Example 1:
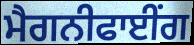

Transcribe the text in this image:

ਮੈਗਨੀਫਾਈਂਗ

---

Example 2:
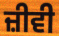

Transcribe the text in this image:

ਜ਼ੀਵੀ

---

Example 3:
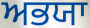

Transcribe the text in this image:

ਅਭਯਾ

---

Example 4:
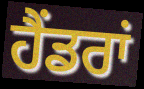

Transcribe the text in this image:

ਹੈਂਡਰਾਂ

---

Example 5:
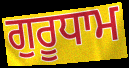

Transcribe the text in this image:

ਗੁਰੂਧਾਮ